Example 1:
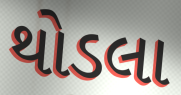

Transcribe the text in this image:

થોડલા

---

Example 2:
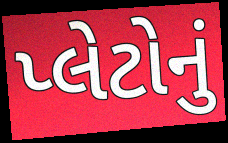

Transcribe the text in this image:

પ્લેટોનું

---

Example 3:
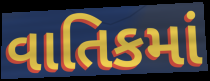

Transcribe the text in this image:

વાતિકમાં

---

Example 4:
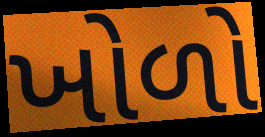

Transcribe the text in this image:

ખોળો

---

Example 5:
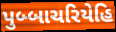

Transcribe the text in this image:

પુબ્બાચરિયેહિ